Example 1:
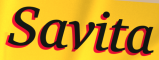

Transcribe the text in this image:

Savita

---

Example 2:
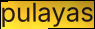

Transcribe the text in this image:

pulayas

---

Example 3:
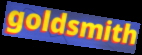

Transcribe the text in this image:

goldsmith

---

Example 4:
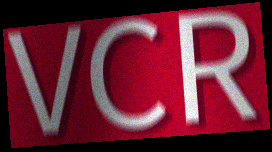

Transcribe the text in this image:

VCR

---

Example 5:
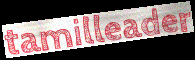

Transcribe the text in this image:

tamilleader